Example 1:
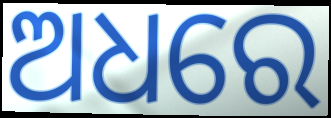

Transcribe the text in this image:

ଅଧରେ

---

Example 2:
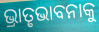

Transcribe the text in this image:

ଭ୍ରାତୃଭାବନାକୁ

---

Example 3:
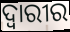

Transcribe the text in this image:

ଦ୍ୱାରୀର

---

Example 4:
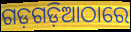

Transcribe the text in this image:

ଗଡ଼ଗଡ଼ିଆଠାରେ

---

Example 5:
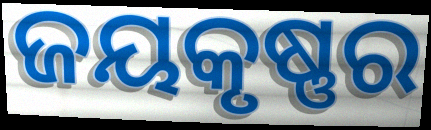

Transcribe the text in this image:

ଜୟକୃଷ୍ଣର